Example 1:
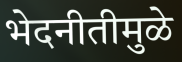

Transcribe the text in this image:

भेदनीतीमुळे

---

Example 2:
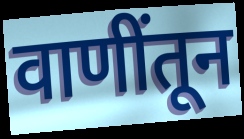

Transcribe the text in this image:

वाणींतून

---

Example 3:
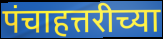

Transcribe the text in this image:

पंचाहत्तरीच्या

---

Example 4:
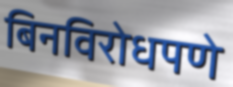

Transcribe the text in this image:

बिनविरोधपणे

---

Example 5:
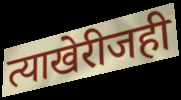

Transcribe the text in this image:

त्याखेरीजही